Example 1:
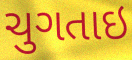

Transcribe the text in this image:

ચુગતાઇ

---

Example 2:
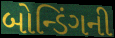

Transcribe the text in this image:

બોન્ડિંગની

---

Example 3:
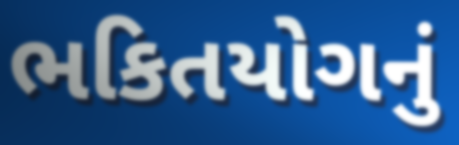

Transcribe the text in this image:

ભકિતયોગનું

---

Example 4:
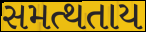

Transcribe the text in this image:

સમત્થતાય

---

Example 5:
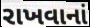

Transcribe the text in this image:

રાખવાનાં